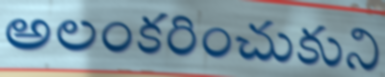
అలంకరించుకుని